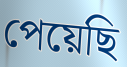
পেয়েছি